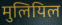
मुलियिल